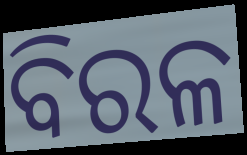
ବିରଳ